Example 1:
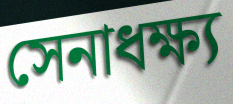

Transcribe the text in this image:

সেনাধক্ষ্য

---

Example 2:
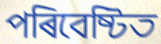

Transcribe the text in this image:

পৰিবেষ্টিত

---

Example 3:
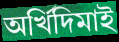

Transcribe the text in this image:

অৰ্খিদিমাই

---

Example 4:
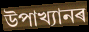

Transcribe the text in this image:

উপাখ্যানৰ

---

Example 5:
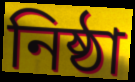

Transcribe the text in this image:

নিষ্ঠা